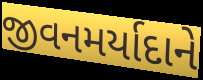
જીવનમર્યાદાને